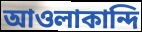
আওলাকান্দি